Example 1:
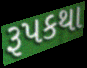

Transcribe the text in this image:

રૂપકથા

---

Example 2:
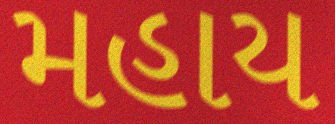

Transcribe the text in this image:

મહાય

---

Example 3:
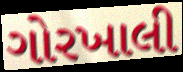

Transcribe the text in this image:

ગોરખાલી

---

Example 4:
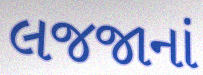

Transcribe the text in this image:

લજજાનાં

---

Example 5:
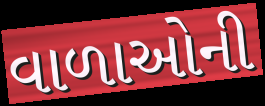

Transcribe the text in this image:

વાળાઓની